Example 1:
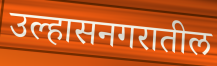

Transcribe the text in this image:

उल्हासनगरातील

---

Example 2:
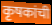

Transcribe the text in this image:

कृषकांची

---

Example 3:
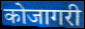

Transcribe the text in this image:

कोजागरी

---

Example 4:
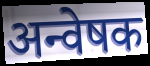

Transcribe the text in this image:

अन्वेषक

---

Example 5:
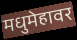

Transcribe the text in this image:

मधुमेहावर